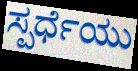
ಸ್ಪರ್ಧೆಯು